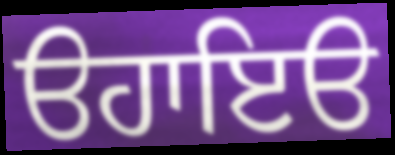
ੳਹਾਇੳ